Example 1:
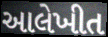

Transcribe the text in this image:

આલેખીત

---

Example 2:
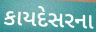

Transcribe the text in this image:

કાયદેસરના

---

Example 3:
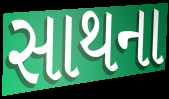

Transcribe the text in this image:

સાથના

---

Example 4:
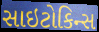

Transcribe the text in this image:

સાઇટોકિન્સ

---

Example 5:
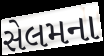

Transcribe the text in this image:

સેલમના